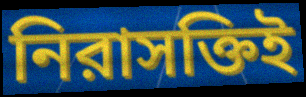
নিরাসক্তিই